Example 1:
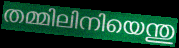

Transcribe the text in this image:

തമ്മിലിനിയെന്തു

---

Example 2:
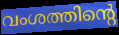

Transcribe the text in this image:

വംശത്തിന്റെ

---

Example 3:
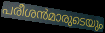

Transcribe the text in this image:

പരീശൻമാരുടെയും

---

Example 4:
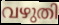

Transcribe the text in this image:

വഴുതി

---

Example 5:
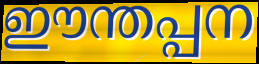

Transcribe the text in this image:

ഈന്തപ്പന